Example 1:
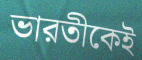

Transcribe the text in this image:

ভারতীকেই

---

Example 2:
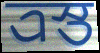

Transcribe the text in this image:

ত্রস্ত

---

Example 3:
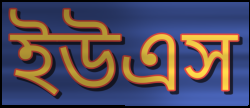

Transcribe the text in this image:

ইউএস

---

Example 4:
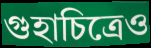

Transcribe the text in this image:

গুহাচিত্রেও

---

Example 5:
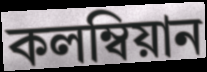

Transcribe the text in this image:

কলম্বিয়ান